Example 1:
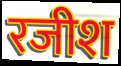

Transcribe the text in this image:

रजीश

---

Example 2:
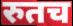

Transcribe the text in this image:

रुतच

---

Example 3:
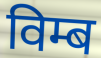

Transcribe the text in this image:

विम्ब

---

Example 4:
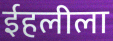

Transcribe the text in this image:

ईहलीला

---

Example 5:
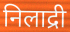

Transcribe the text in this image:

निलाद्री